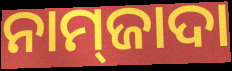
ନାମ୍‍ଜାଦା